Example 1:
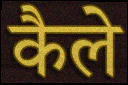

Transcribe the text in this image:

कैले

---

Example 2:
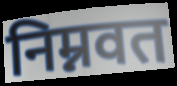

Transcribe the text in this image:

निम्नवत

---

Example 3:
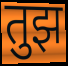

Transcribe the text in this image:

तुझ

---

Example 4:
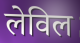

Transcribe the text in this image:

लेविल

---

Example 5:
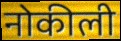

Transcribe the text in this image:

नोकीली